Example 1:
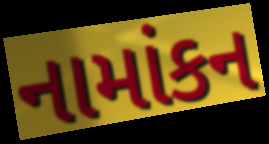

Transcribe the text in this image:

નામાંકન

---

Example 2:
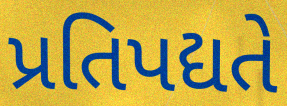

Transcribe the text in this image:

પ્રતિપદ્યતે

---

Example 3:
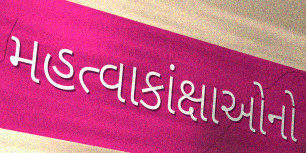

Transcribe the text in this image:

મહત્વાકાંક્ષાઓનો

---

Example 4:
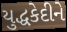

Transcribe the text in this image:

યુદ્ધકેદીને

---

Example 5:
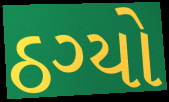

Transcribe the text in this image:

ઠગ્યો